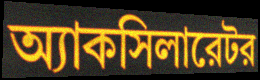
অ্যাকসিলারেটর